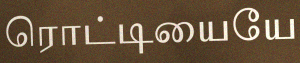
ரொட்டியையே